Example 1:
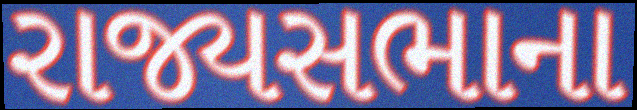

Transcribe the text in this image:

રાજ્યસભાના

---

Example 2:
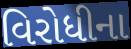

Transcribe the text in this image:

વિરોધીના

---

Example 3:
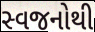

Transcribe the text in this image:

સ્વજનોથી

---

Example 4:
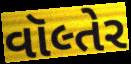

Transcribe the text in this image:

વૉલ્તેર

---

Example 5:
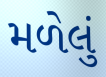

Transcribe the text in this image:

મળેલું